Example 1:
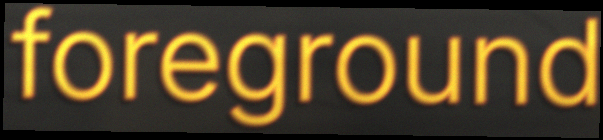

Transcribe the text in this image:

foreground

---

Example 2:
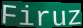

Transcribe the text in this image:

Firuz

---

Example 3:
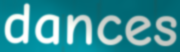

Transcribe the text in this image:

dances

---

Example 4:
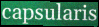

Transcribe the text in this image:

capsularis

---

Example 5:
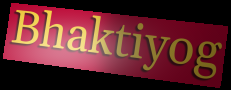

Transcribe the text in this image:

Bhaktiyog